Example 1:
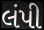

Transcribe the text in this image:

લંપી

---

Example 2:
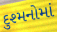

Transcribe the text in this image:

દુશ્મનોમાં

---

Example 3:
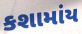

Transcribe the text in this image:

કશામાંય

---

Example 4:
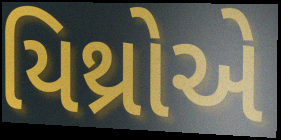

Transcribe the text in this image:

યિથ્રોએ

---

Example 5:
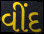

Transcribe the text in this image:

વીંદ